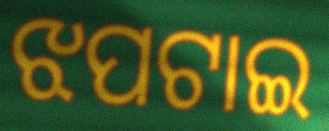
ଝପଟାଇ